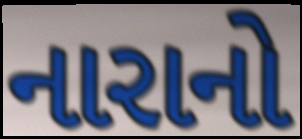
નારાનો